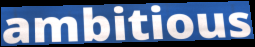
ambitious